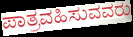
ಪಾತ್ರವಹಿಸುವವರು